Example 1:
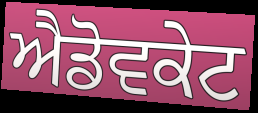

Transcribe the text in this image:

ਐਡੋਵਕੇਟ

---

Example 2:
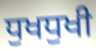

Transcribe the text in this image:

ਧੁਖਧੁਖੀ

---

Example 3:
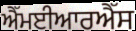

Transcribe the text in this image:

ਐੱਮਈਆਰਐੱਸ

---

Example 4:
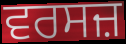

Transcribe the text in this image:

ਵਰਸਜ਼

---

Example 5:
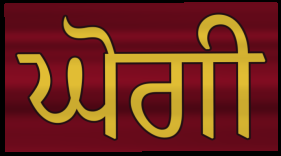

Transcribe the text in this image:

ਘੋਗੀ